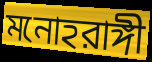
মনোহরাঙ্গী